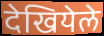
देखियेले